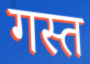
गस्त